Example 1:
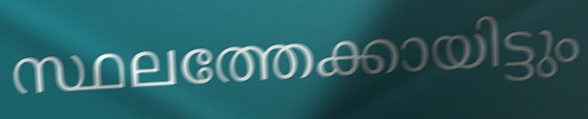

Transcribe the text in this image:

സ്ഥലത്തേക്കായിട്ടും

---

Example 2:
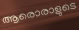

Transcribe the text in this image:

ആരൊരാളുടെ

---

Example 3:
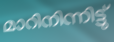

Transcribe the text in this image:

മാറിനിന്നിട്ടു്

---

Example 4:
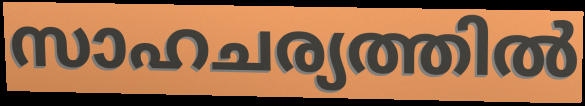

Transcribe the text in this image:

സാഹചര്യത്തിൽ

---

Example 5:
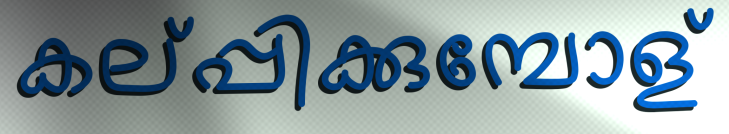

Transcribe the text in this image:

കല്പ്പിക്കുമ്പോള്